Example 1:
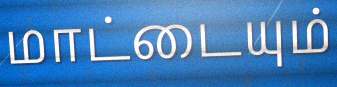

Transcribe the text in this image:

மாட்டையும்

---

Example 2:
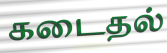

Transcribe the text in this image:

கடைதல்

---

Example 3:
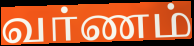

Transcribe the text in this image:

வர்ணம்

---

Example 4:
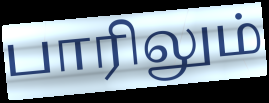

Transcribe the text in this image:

பாரிலும்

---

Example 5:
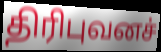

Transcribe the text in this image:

திரிபுவனச்